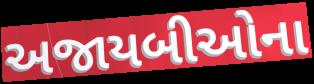
અજાયબીઓના